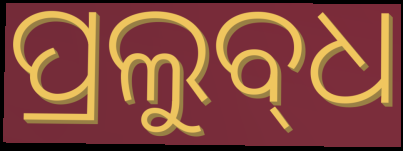
ପ୍ରଲୁବ୍‌ଧ